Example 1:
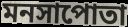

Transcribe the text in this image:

মনসাপোতা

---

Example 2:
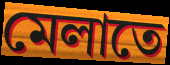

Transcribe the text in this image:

মেলাতে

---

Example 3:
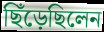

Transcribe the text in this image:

ছিঁড়েছিলেন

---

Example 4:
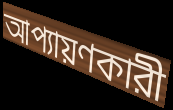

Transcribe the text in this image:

আপ্যায়ণকারী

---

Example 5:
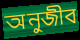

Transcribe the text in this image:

অনুজীব